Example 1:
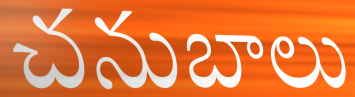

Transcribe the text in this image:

చనుబాలు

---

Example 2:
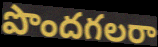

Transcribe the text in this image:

పొందగలరా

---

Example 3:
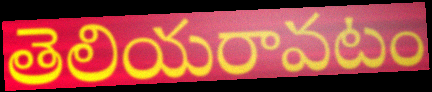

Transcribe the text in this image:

తెలియరావటం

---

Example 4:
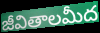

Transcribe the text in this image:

జీవితాలమీద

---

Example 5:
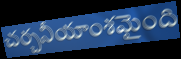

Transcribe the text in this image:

చర్చనీయాంశమైంది